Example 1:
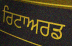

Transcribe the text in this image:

ਰਿਟਾਅਰਡ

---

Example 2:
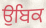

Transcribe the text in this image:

ਉਬਿਕ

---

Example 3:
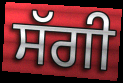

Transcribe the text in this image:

ਸੱਗੀ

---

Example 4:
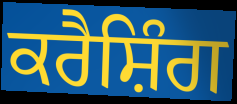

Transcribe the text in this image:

ਕਰੈਸ਼ਿੰਗ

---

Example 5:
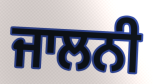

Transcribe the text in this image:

ਜਾਲਨੀ